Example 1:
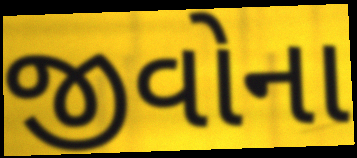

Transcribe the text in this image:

જીવોના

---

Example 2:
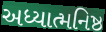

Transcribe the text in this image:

અધ્યાત્મનિષ્ઠ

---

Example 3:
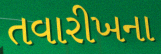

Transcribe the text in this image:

તવારીખના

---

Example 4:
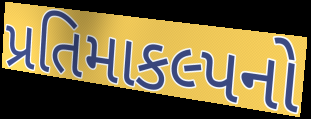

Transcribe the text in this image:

પ્રતિમાકલ્પનો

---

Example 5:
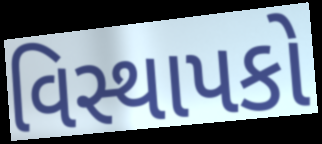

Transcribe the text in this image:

વિસ્થાપકો